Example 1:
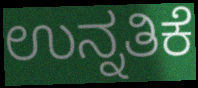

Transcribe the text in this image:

ಉನ್ನತಿಕೆ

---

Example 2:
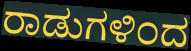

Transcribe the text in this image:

ರಾಡುಗಳಿಂದ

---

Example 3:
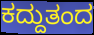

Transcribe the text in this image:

ಕದ್ದುತಂದ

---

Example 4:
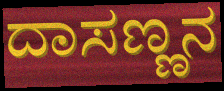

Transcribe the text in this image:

ದಾಸಣ್ಣನ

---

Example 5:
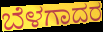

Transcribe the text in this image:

ಬೆಳಗಾದರ